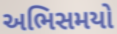
અભિસમયો